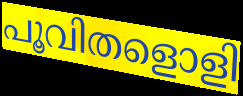
പൂവിതളൊളി